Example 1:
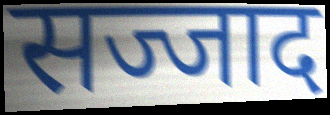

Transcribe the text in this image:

सज्जाद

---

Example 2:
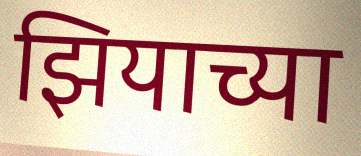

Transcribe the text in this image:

झियाच्या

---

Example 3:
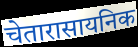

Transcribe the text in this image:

चेतारासायनिक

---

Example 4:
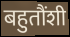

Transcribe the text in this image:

बहुतौंशी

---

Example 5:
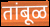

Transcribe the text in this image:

तांबूळ